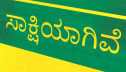
ಸಾಕ್ಷಿಯಾಗಿವೆ